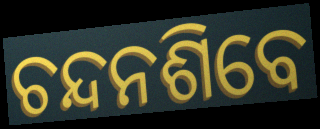
ଚନ୍ଦନଶିବେ